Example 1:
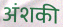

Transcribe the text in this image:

अंशकी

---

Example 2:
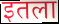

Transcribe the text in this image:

इतला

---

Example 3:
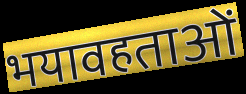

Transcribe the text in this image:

भयावहताओं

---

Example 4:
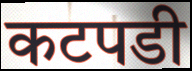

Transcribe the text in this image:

कटपडी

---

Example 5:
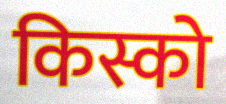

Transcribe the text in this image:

किस्को